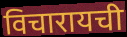
विचारायची